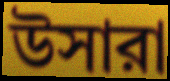
উসারা